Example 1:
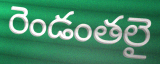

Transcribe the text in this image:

రెండంతలై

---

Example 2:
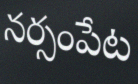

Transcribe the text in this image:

నర్సంపేట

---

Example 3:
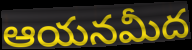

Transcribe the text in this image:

ఆయనమీద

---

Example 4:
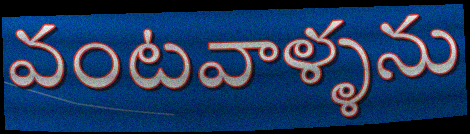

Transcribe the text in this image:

వంటవాళ్ళను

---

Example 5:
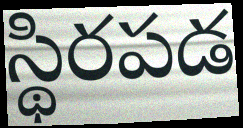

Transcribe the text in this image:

స్థిరపడ